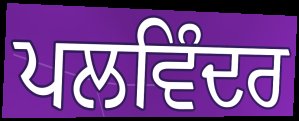
ਪਲਵਿੰਦਰ